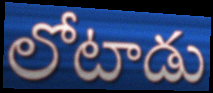
లోటాడు